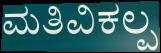
ಮತಿವಿಕಲ್ಪ